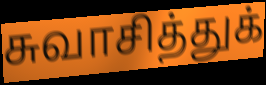
சுவாசித்துக்